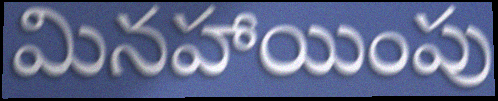
మినహాయింపు